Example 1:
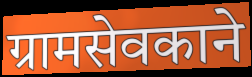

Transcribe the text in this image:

ग्रामसेवकाने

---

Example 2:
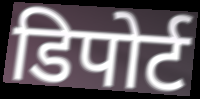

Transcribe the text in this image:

डिपोर्ट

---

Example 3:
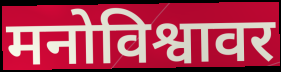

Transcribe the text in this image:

मनोविश्वावर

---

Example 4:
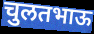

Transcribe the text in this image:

चुलतभाऊ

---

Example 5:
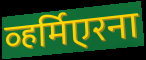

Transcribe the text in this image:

व्हर्मिएरना